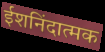
ईशनिंदात्मक